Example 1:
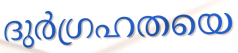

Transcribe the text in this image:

ദുർഗ്രഹതയെ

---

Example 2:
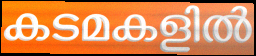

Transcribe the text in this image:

കടമകളിൽ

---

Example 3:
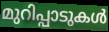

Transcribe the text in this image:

മുറിപ്പാടുകൾ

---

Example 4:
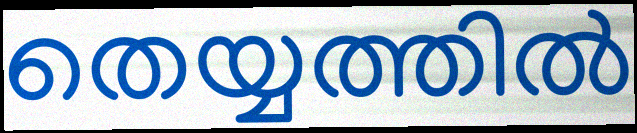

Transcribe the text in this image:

തെയ്യത്തിൽ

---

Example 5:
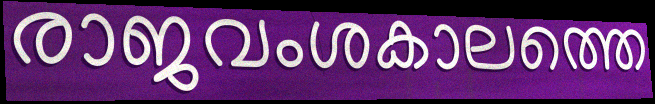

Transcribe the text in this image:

രാജവംശകാലത്തെ